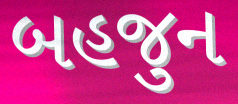
બહજુન